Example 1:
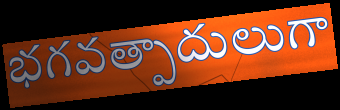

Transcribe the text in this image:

భగవత్పాదులుగా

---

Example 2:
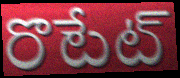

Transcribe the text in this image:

రొటేట్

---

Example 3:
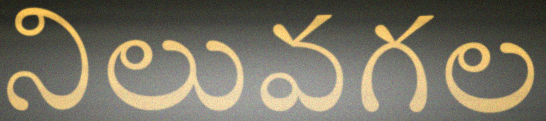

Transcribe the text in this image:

నిలువగల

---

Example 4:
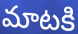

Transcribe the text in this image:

మాటకి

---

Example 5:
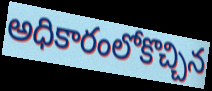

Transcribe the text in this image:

అధికారంలోకొచ్చిన